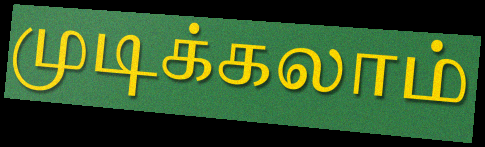
முடிக்கலாம்